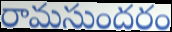
రామసుందరం